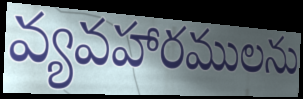
వ్యవహారములను